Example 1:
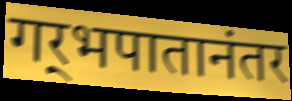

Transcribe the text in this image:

गर्भपातानंतर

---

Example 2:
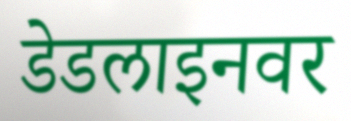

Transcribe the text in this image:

डेडलाइनवर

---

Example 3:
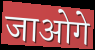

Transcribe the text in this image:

जाओगे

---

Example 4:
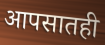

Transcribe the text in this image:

आपसातही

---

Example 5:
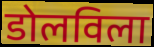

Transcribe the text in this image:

डोलविला